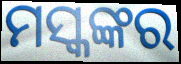
ମସ୍କଙ୍କର